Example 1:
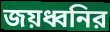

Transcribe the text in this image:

জয়ধ্বনির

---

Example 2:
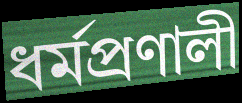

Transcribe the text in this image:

ধর্মপ্রণালী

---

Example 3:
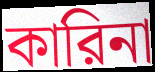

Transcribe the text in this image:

কারিনা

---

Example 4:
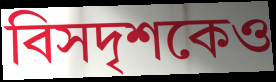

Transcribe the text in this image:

বিসদৃশকেও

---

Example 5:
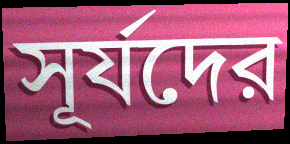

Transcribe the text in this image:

সূর্যদের